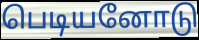
பெடியனோடு